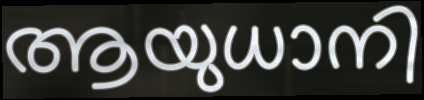
ആയുധാനി